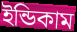
ইন্ডিকাম